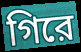
গিরে